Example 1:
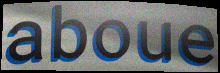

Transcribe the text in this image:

aboue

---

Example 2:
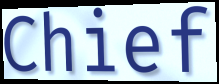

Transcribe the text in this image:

Chief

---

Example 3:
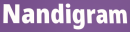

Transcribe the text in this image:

Nandigram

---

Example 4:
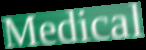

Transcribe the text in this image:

Medical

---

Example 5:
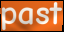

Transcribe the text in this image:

past